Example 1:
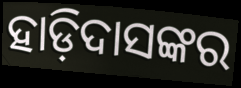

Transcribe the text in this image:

ହାଡ଼ିଦାସଙ୍କର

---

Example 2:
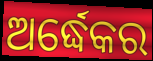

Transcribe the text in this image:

ଅର୍ଦ୍ଧେକର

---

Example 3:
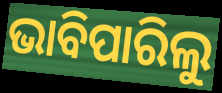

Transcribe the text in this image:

ଭାବିପାରିଲୁ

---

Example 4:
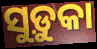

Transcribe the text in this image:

ସୁଡ଼ୁକା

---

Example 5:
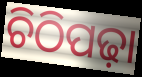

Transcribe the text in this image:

ଚିଠିପଢ଼ା